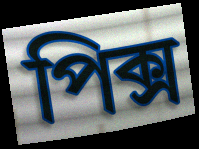
পিক্স